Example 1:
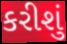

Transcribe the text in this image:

કરીશું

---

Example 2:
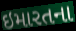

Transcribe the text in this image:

ઇમારતના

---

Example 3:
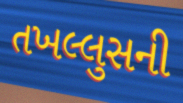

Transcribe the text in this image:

તખલ્લુસની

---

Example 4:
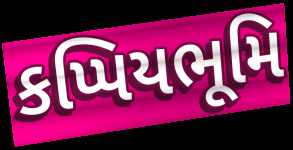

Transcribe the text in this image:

કપ્પિયભૂમિ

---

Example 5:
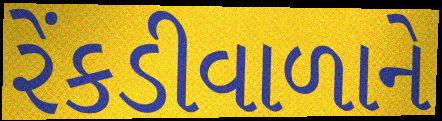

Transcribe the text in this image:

રેંકડીવાળાને